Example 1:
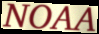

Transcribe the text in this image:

NOAA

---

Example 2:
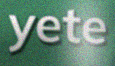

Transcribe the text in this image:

yete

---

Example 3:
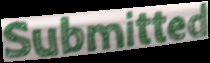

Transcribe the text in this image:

Submitted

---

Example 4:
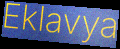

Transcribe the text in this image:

Eklavya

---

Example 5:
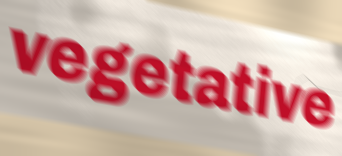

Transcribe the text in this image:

vegetative